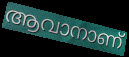
ആവാനാണ്